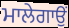
ਮਾਲੇਗਾਉਂ